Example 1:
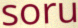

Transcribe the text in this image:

soru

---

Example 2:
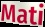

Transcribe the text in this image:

Mati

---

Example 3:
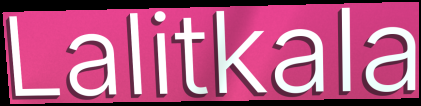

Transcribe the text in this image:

Lalitkala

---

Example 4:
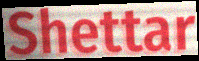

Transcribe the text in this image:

Shettar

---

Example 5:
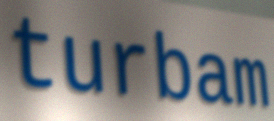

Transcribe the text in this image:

turbam